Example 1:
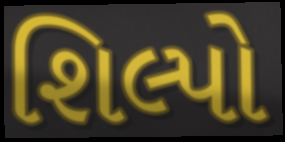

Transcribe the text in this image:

શિલ્પો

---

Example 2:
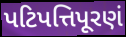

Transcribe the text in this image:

પટિપત્તિપૂરણં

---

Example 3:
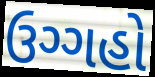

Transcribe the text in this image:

ઉગ્ગહો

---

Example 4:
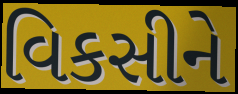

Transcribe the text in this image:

વિકસીને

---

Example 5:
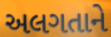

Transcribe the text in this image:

અલગતાને